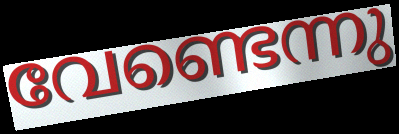
വേണ്ടെന്നു